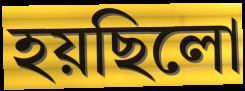
হয়ছিলো